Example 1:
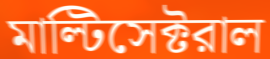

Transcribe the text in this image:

মাল্টিসেক্টরাল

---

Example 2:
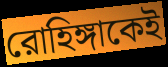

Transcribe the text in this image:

রোহিঙ্গাকেই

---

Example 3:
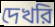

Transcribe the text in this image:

দেখরি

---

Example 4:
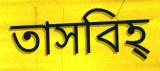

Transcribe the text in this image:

তাসবিহ্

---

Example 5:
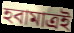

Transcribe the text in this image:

হবামাত্রই